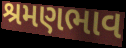
શ્રમણભાવ